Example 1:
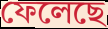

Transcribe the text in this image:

ফেলেছে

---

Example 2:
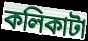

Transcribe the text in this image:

কলিকাটা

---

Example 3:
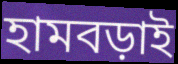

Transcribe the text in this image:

হামবড়াই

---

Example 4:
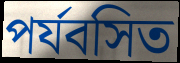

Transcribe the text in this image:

পর্যবসিত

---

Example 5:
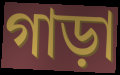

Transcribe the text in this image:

গাড়া